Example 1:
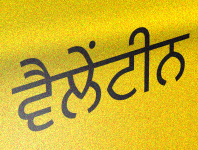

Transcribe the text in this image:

ਵੈਲੇਂਟੀਨ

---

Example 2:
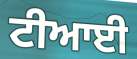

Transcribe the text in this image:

ਟੀਆਈ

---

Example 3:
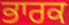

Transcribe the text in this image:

ਭਾਰਕ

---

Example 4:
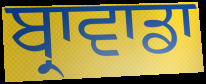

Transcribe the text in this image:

ਬ੍ਰਾਵਾਡਾ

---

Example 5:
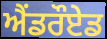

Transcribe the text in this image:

ਐਂਡਰੌਏਡ